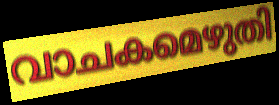
വാചകമെഴുതി